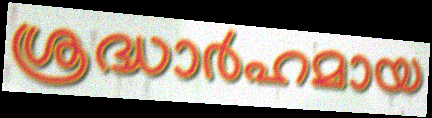
ശ്രദ്ധാർഹമായ